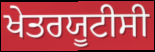
ਖੇਤਰਯੂਟੀਸੀ